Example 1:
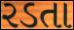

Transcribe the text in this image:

રડતા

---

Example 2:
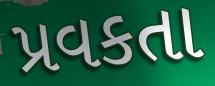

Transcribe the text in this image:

પ્રવકતા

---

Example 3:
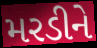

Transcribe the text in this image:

મરડીને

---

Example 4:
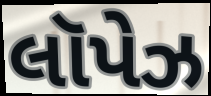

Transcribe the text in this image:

લૉપેઝ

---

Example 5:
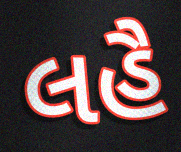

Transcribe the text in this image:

લહૈ